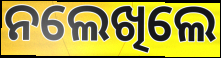
ନଲେଖିଲେ